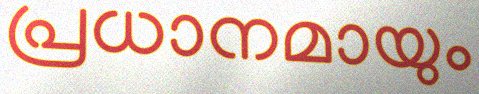
പ്രധാനമായും